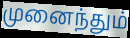
முனைந்தும்